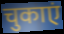
चुकाएं